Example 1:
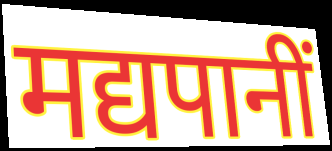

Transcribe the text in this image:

मद्यपानीं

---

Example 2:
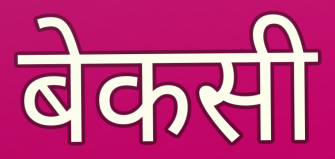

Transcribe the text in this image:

बेकसी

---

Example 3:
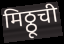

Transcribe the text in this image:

मिठ्ठूची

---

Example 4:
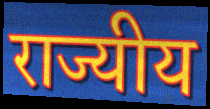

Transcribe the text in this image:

राज्यीय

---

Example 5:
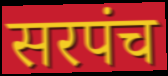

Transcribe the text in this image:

सरपंच